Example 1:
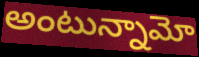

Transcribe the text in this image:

అంటున్నామో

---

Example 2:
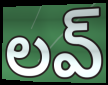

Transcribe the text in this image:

లవ్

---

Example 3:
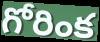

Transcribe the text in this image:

గోరింక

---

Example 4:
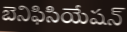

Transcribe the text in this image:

బెనిఫిసియేషన్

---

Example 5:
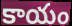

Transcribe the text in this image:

కాయం